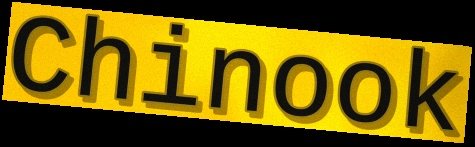
Chinook